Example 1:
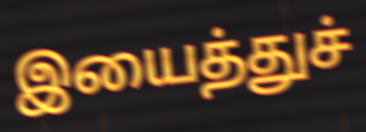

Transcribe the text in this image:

இயைத்துச்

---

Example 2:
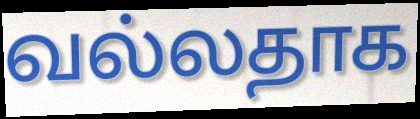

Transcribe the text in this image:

வல்லதாக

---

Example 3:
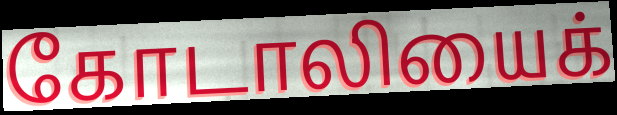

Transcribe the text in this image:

கோடாலியைக்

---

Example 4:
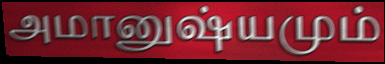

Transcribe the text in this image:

அமானுஷ்யமும்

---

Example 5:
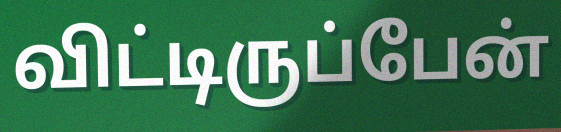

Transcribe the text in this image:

விட்டிருப்பேன்